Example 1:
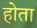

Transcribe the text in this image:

होता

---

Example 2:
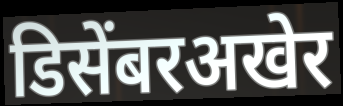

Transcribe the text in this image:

डिसेंबरअखेर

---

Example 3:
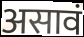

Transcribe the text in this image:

असावं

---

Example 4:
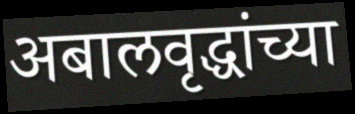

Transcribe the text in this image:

अबालवृद्धांच्या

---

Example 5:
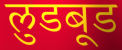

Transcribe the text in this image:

लुडबूड